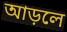
আড়লে